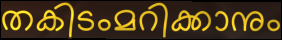
തകിടംമറിക്കാനും